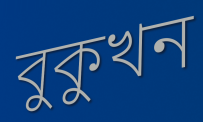
বুকুখন